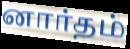
னார்தம்